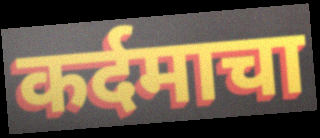
कर्दमाचा